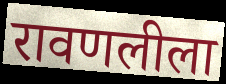
रावणलीला